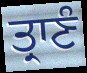
ਤ੍ਰਾਣੰ